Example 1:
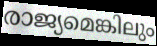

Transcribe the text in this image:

രാജ്യമെങ്കിലും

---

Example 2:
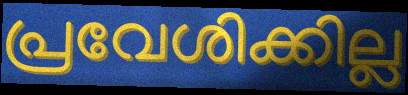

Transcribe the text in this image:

പ്രവേശിക്കില്ല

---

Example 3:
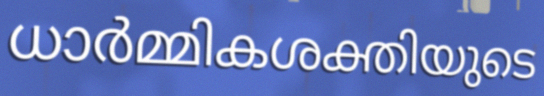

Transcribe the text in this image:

ധാർമ്മികശക്തിയുടെ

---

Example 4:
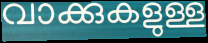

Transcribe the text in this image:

വാക്കുകളുള്ള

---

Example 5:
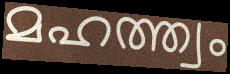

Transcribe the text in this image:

മഹത്ത്വം